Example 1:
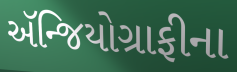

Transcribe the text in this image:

ઍન્જિયોગ્રાફીના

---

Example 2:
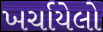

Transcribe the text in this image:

ખર્ચાયેલો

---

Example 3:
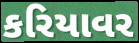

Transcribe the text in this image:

કરિયાવર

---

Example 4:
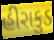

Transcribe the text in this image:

હીરાકુડ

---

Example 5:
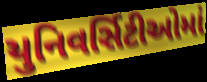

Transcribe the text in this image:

યુનિવર્સિટીઓમાં